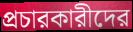
প্রচারকারীদের